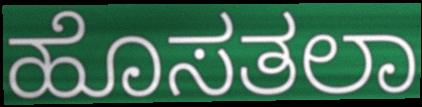
ಹೊಸತಲಾ